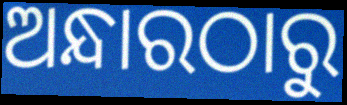
ଅନ୍ଧାରଠାରୁ